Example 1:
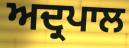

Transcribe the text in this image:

ਅਦ੍ਰਪਾਲ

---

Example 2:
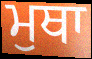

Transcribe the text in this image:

ਮੁਥਾ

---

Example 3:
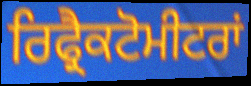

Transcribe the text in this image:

ਰਿਫ੍ਰੈਕਟੋਮੀਟਰਾਂ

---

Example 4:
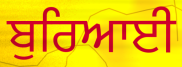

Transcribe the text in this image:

ਬੁਰਿਆਈ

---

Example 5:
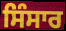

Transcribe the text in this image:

ਸਿੰਸਾਰ